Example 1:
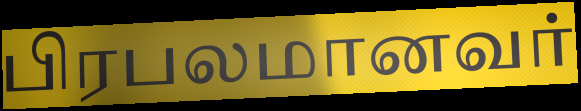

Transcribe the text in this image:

பிரபலமானவர்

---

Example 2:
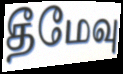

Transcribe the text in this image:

தீமேவு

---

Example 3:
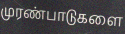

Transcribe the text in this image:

முரண்பாடுகளை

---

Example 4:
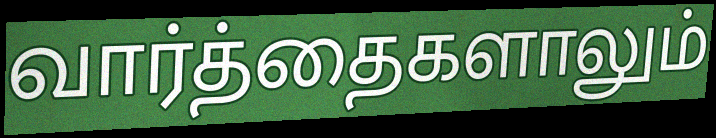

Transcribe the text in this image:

வார்த்தைகளாலும்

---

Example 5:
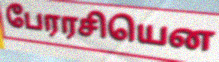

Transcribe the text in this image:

பேரரசியென